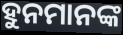
ହୁନମାନଙ୍କ